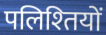
पलिश्‍तियों